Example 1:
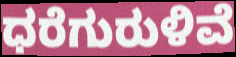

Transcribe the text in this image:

ಧರೆಗುರುಳಿವೆ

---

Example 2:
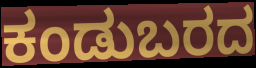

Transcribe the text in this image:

ಕಂಡುಬರದ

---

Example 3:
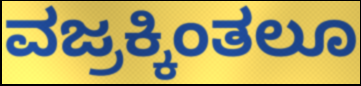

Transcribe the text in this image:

ವಜ್ರಕ್ಕಿಂತಲೂ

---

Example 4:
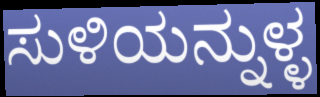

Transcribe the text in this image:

ಸುಳಿಯನ್ನುಳ್ಳ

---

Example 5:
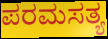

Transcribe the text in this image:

ಪರಮಸತ್ಯ